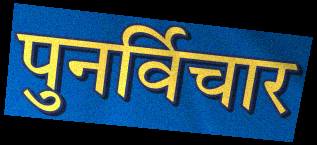
पुनर्विचार